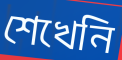
শেখেনি